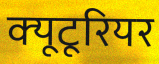
क्यूटूरियर